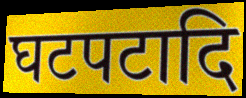
घटपटादि